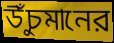
উঁচুমানের